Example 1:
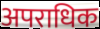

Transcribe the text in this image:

अपराधिक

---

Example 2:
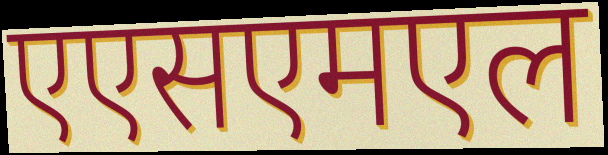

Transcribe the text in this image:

एएसएमएल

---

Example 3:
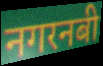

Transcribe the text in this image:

नगरनबी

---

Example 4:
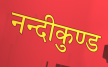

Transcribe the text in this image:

नन्दीकुण्ड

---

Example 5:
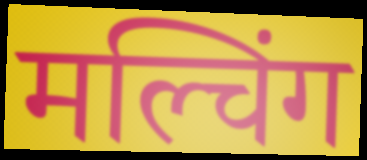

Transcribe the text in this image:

मल्चिंग